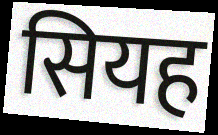
सियह